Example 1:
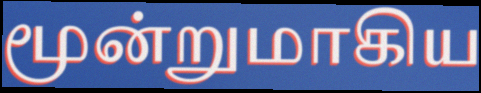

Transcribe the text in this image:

மூன்றுமாகிய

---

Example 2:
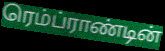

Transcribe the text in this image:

ரெம்ப்ராண்டின்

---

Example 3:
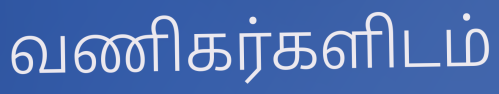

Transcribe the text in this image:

வணிகர்களிடம்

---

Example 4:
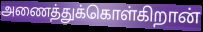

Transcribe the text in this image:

அணைத்துக்கொள்கிறான்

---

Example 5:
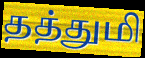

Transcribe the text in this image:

தத்துமி